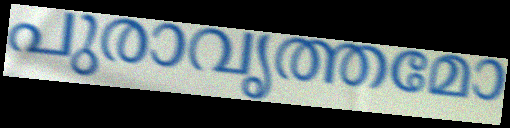
പുരാവൃത്തമോ